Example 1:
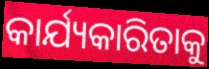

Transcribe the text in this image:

କାର୍ଯ୍ୟକାରିତାକୁ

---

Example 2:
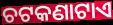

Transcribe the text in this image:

ଚଟକଣାଟାଏ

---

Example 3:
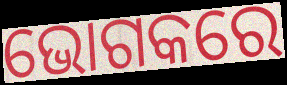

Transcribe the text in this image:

ଭୋଗକରେ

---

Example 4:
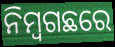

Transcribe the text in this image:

ନିମ୍ବଗଛରେ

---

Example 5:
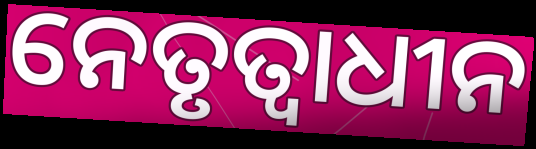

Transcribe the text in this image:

ନେତୃତ୍ୱାଧୀନ